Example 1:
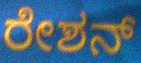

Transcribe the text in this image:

ರೇಶನ್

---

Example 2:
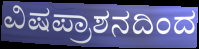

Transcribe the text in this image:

ವಿಷಪ್ರಾಶನದಿಂದ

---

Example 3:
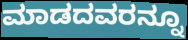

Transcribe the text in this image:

ಮಾಡದವರನ್ನೂ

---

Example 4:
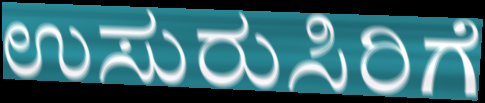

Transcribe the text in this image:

ಉಸುರುಸಿರಿಗೆ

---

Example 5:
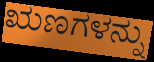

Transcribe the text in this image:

ಋಣಗಳನ್ನು